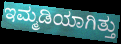
ಇಮ್ಮಡಿಯಾಗಿತ್ತು